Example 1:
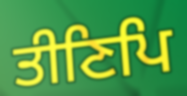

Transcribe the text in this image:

ਤੀਣਿਪਿ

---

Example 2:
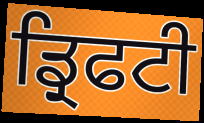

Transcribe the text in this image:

ਡ੍ਰਿਫਟੀ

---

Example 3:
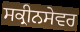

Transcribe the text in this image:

ਸਕ੍ਰੀਨਸੇਵਰ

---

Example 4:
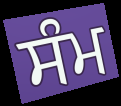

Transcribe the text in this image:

ਸੰਮ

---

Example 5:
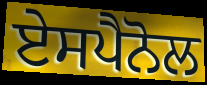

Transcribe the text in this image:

ਏਸਪੈਨੋਲ